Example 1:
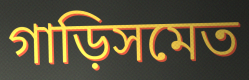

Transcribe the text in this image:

গাড়িসমেত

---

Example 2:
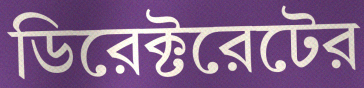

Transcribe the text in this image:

ডিরেক্টরেটের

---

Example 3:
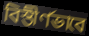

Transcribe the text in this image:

বিস্তীর্ণভাবে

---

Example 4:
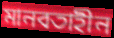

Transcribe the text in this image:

মানবতাহীন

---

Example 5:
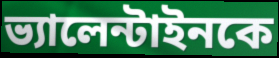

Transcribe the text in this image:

ভ্যালেন্টাইনকে